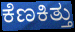
ಕೆಣಕಿತ್ತು